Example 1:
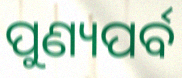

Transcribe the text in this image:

ପୁଣ୍ୟପର୍ବ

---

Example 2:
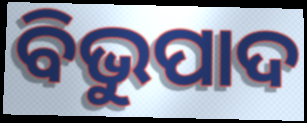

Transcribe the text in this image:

ବିଭୁପାଦ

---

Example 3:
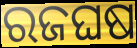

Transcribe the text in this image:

ରଜଘଷ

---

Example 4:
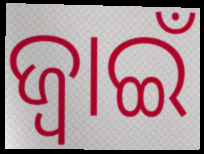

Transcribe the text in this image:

ଜ୍ଵାଇଁ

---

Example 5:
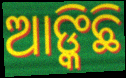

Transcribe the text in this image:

ଆଙ୍କିଛି